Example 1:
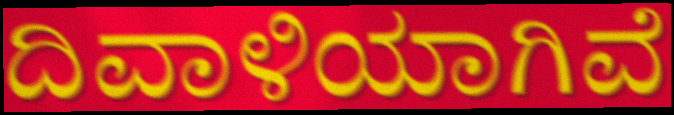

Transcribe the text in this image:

ದಿವಾಳಿಯಾಗಿವೆ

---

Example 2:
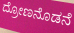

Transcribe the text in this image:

ದ್ರೋಣನೊಡನೆ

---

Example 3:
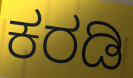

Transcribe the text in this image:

ಕರಡಿ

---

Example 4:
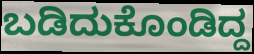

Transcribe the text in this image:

ಬಡಿದುಕೊಂಡಿದ್ದ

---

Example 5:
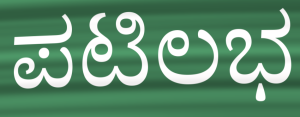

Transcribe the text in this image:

ಪಟಿಲಭ